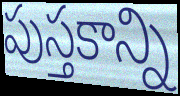
పుస్తకాన్ని